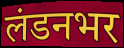
लंडनभर